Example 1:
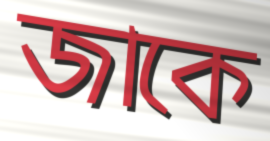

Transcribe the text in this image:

জাকে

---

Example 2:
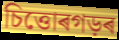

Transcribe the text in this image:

চিত্তোৰগড়ৰ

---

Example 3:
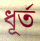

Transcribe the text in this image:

ধূৰ্ত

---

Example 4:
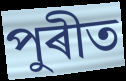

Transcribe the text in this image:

পুৰীত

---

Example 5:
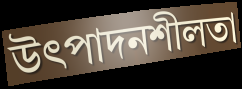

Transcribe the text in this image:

উৎপাদনশীলতা